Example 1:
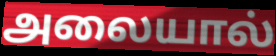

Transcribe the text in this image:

அலையால்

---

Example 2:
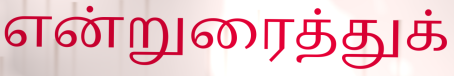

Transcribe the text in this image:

என்றுரைத்துக்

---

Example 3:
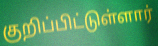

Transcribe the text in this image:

குறிப்பிட்டுள்ளார்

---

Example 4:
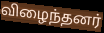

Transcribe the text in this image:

விழைந்தனர்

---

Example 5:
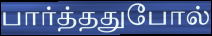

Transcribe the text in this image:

பார்த்ததுபோல்